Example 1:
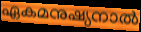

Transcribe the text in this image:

ഏകമനുഷ്യനാൽ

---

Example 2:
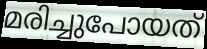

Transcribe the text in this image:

മരിച്ചുപോയത്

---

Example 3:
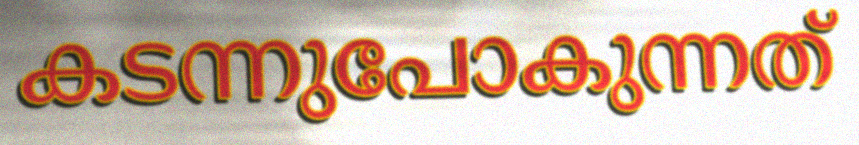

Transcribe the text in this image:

കടന്നുപോകുന്നത്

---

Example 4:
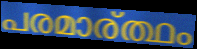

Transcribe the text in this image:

പരമാര്ത്ഥം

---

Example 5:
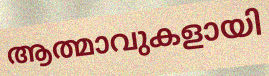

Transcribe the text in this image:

ആത്മാവുകളായി